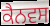
ਕੈਨਵਸ